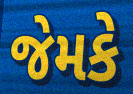
જેમકે